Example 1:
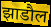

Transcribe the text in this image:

झाडौल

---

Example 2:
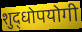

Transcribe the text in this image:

शुद्धोपयोगी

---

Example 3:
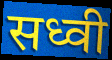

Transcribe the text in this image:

सध्वी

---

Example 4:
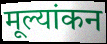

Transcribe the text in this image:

मूल्‍यांकन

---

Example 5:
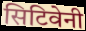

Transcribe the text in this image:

सिटिवेनी